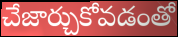
చేజార్చుకోవడంతో